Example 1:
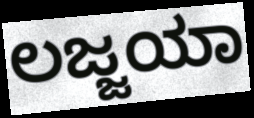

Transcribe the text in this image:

ಲಜ್ಜಯಾ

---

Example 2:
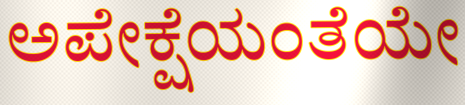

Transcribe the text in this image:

ಅಪೇಕ್ಷೆಯಂತೆಯೇ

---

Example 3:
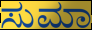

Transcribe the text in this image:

ಸುಮಾ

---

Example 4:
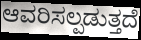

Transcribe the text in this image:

ಆವರಿಸಲ್ಪಡುತ್ತದೆ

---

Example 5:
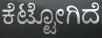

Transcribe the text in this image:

ಕೆಟ್ಟೋಗಿದೆ